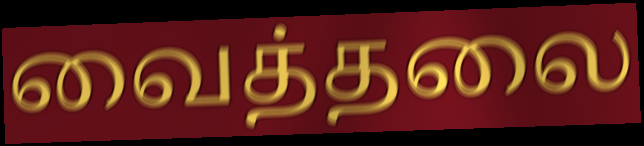
வைத்தலை